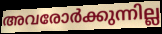
അവരോർക്കുന്നില്ല